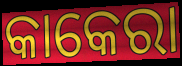
କାକେରା